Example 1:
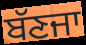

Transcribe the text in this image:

ਬੱਣਜਾ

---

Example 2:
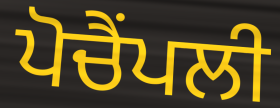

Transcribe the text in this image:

ਪੋਚੈਂਪਲੀ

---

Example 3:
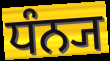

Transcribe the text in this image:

ਧੰਨ੍ਯ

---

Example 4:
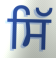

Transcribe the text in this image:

ਸਿੱ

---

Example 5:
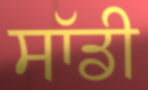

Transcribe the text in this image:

ਸਾੱਡੀ